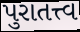
પુરાતત્ત્વ